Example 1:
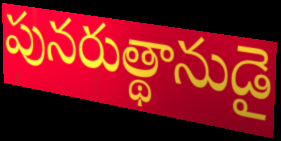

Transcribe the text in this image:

పునరుత్థానుడై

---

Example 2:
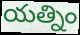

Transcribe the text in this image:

యత్నిం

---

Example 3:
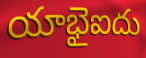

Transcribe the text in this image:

యాభైఐదు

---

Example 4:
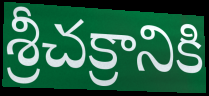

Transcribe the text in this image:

శ్రీచక్రానికి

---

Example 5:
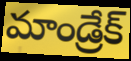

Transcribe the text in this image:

మాండ్రేక్